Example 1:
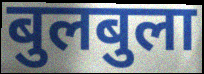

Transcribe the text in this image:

बुलबुला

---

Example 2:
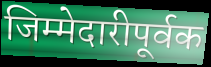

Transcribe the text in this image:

जिम्मेदारीपूर्वक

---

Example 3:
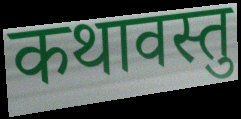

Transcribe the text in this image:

कथावस्तु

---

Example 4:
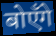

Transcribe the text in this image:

बोएँगे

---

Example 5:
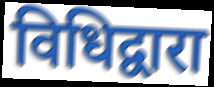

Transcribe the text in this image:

विधिद्वारा